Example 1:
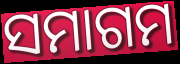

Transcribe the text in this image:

ସମାଗମ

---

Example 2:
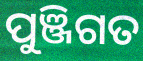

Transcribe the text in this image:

ପୁଞ୍ଜିଗତ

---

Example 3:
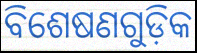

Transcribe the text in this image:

ବିଶେଷଣଗୁଡ଼ିକ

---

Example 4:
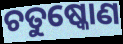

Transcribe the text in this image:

ଚତୁଷ୍କୋଣ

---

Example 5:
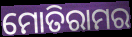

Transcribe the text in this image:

ମୋତିରାମର